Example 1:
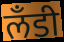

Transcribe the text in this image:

लँडी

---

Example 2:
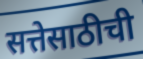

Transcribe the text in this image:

सत्तेसाठीची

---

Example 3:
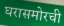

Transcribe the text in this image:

घरासमोरची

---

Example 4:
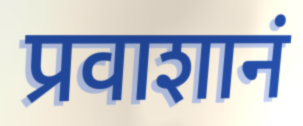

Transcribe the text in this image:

प्रवाशानं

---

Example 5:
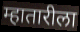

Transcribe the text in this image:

म्हातारीला